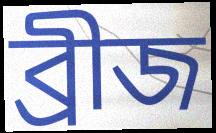
ব্রীজ